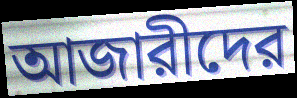
আজারীদের